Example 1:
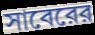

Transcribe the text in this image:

সাবেরের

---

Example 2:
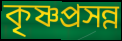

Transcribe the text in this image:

কৃষ্ণপ্রসন্ন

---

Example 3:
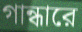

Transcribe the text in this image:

গান্ধারে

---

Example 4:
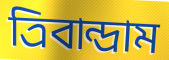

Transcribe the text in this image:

ত্রিবান্দ্রাম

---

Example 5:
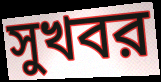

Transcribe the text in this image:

সুখবর